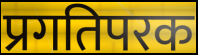
प्रगतिपरक